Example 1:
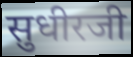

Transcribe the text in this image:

सुधीरजी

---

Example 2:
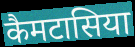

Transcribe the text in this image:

कैमटासिया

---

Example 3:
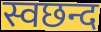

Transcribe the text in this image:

स्वछन्द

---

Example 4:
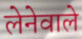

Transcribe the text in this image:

लेनेवाले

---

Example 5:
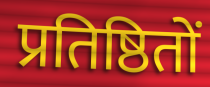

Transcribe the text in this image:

प्रतिष्ठितों